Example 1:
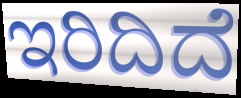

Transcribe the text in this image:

ಇರಿದಿದೆ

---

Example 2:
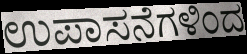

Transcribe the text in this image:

ಉಪಾಸನೆಗಳಿಂದ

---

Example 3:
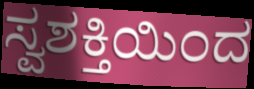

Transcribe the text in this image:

ಸ್ವಶಕ್ತಿಯಿಂದ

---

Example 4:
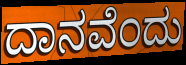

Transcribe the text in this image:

ದಾನವೆಂದು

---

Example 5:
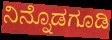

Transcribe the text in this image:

ನಿನ್ನೊಡಗೂಡಿ